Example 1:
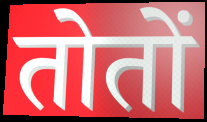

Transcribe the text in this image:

तोतों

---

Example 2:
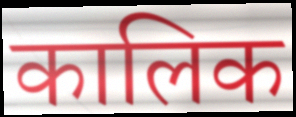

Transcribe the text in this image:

कालिक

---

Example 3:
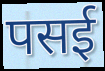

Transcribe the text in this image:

पसई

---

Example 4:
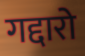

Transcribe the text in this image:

गद्दारो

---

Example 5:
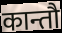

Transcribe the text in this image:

कान्तौ